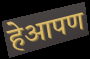
हेआपण